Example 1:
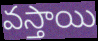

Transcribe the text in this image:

వస్తాయి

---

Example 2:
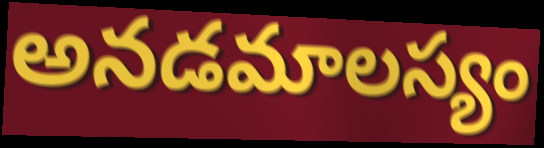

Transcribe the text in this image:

అనడమాలస్యం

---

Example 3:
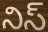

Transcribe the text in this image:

నిస్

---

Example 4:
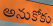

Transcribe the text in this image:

అనుకోకు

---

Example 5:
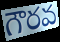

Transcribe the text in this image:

గౌరవ